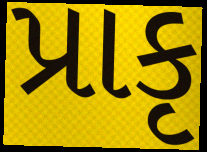
પ્રાકૃ